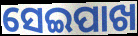
ସେଇପାଖ